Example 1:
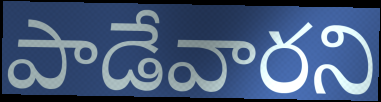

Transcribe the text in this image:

పాడేవారని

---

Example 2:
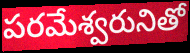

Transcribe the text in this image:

పరమేశ్వరునితో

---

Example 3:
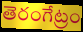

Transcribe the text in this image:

తెరంగేట్రం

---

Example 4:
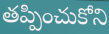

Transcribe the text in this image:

తప్పించుకోని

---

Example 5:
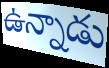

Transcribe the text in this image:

ఉన్నాడు